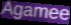
Agamee